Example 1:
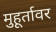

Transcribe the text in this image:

मुहूर्तावर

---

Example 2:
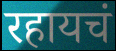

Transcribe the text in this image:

रहायचं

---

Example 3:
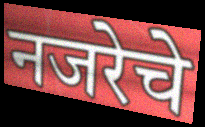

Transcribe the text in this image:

नजरेचे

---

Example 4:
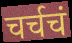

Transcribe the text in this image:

चर्चचं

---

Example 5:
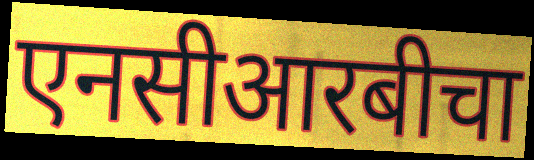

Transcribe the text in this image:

एनसीआरबीचा